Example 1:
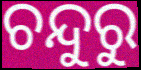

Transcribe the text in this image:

ଚନ୍ଦୁରୁ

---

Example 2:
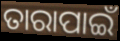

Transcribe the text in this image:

ତାରାପାଇଁ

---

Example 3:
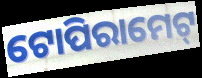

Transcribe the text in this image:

ଟୋପିରାମେଟ୍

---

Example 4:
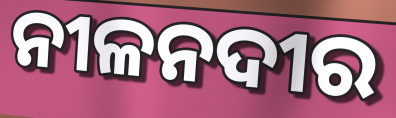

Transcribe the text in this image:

ନୀଳନଦୀର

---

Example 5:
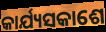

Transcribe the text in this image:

କାର୍ଯ୍ୟସକାଶେ